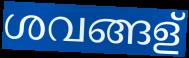
ശവങ്ങള്